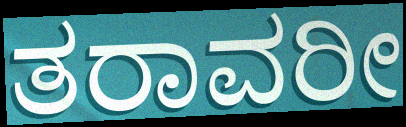
ತರಾವರೀ